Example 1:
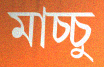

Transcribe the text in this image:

মাচ্চু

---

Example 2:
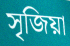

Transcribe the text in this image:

সৃজিয়া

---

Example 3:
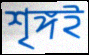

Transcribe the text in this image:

শৃঙ্গই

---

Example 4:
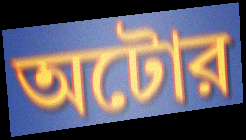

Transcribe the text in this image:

অটোর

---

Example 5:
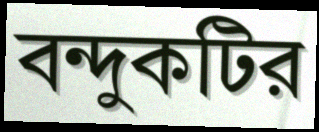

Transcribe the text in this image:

বন্দুকটির